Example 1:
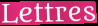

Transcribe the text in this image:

Lettres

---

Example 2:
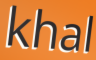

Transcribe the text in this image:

khal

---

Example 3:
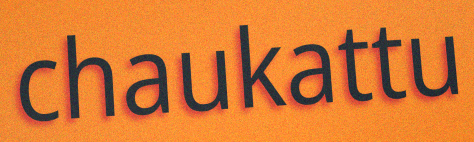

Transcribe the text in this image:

chaukattu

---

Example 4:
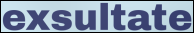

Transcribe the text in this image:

exsultate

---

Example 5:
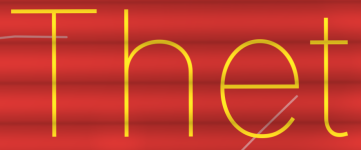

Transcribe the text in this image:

Thet